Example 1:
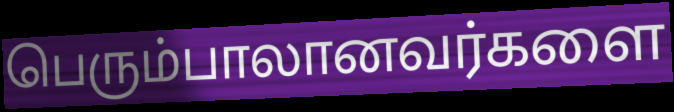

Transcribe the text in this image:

பெரும்பாலானவர்களை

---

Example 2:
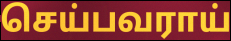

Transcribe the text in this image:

செய்பவராய்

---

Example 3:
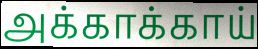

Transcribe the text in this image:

அக்காக்காய்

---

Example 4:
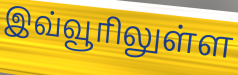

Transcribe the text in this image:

இவ்வூரிலுள்ள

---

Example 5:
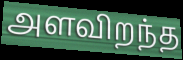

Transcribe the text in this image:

அளவிறந்த